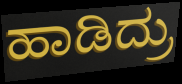
ಹಾಡಿದ್ರು